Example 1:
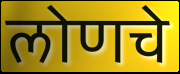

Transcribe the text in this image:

लोणचे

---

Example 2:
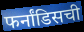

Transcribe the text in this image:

फर्नांडिसची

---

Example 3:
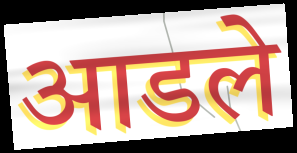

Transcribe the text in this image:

आडले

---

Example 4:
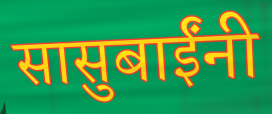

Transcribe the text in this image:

सासुबाईंनी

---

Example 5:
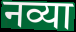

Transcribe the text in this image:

नव्या